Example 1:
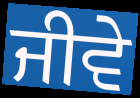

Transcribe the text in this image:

ਜੀਵੇ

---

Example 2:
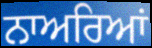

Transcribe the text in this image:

ਨਾਅਰਿਆਂ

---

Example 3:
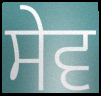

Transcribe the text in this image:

ਸੇਵ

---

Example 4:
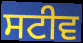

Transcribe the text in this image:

ਸਟੀਵ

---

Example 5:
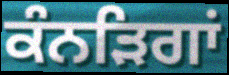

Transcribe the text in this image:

ਕੰਨੜਿਗਾਂ